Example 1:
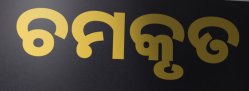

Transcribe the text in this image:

ଚମକୃତ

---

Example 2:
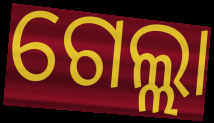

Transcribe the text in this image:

ଗେଲ୍ଲା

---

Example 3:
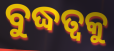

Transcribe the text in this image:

ବୁଦ୍ଧତ୍ଵକୁ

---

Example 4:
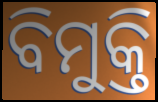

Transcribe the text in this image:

ବିମୁକ୍ତି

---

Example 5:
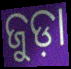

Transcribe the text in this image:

ଜୁଡ଼ା